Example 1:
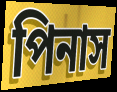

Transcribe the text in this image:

পিনাস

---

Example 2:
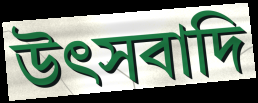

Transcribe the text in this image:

উৎসবাদি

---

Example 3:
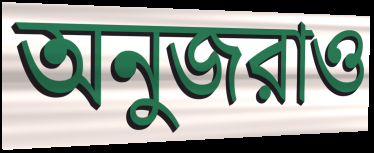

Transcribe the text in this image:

অনুজরাও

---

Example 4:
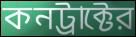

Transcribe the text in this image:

কনট্রাক্টের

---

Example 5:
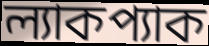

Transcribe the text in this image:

ল্যাকপ্যাক